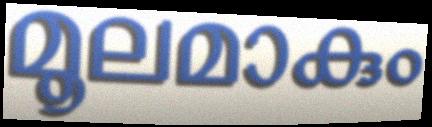
മൂലമാകും